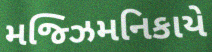
મજ્ઝિમનિકાયે